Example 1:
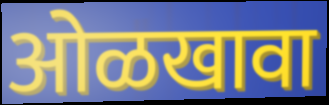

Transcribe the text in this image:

ओळखावा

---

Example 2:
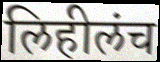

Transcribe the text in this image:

लिहीलंच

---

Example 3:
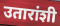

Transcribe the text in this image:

उतारांशी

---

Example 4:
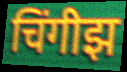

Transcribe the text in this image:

चिंगीझ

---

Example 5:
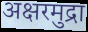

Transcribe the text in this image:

अक्षरमुद्रा